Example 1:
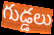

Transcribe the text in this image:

గుడ్డలు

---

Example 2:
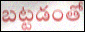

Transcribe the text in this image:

బట్టడంతో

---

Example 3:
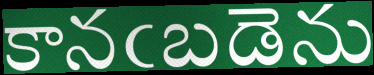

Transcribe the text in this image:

కానఁబడెను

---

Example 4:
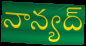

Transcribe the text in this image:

నాన్యద్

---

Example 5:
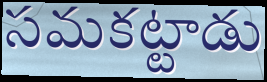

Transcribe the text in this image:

సమకట్టాడు